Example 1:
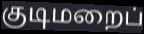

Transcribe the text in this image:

குடிமறைப்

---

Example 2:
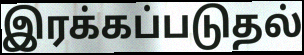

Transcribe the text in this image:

இரக்கப்படுதல்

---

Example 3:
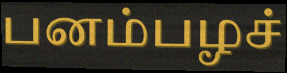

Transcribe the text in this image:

பனம்பழச்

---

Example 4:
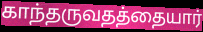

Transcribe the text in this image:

காந்தருவதத்தையார்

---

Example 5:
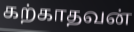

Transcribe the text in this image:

கற்காதவன்